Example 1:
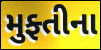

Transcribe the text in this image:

મુફ્તીના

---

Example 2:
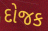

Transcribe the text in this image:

દોજક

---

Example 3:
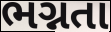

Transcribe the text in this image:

ભગ્નતા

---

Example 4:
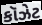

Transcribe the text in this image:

કૉઝેટ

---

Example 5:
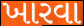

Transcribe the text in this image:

ખારવા